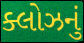
ક્લોઝનું